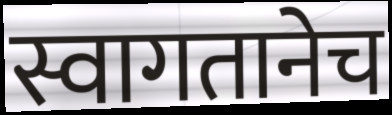
स्वागतानेच